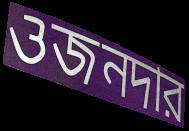
ওজনদার